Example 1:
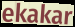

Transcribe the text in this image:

ekakar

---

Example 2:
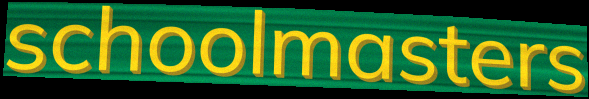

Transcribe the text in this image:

schoolmasters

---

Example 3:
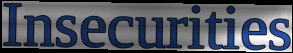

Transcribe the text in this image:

Insecurities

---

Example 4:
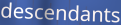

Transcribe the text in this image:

descendants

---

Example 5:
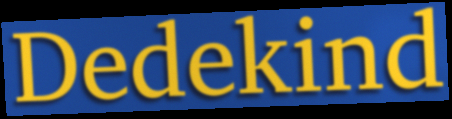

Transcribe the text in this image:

Dedekind